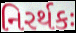
નિરર્થકઃ